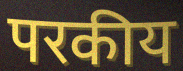
परकीय